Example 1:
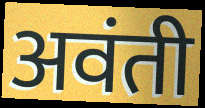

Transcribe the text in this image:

अवंती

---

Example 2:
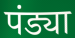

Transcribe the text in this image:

पंड्या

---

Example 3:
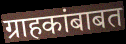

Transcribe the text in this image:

ग्राहकांबाबत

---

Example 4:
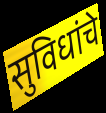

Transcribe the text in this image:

सुविधांचे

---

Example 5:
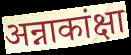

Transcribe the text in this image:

अन्नाकांक्षा